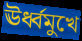
ঊর্ধ্বমুখে